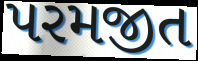
પરમજીત